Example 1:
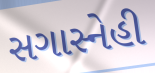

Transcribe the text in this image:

સગાસ્નેહી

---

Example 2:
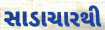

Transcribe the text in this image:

સાડાચારથી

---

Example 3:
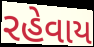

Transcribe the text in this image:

રહેવાય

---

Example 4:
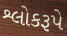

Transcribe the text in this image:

શ્લોકરૂપે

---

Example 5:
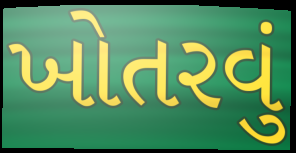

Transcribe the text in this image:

ખોતરવું